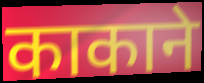
काकाने